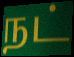
நட்